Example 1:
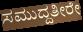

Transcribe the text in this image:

ಸಮುದ್ದತೀರೇ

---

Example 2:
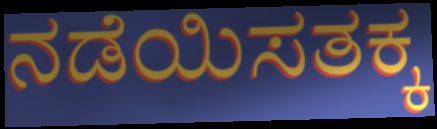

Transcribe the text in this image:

ನಡೆಯಿಸತಕ್ಕ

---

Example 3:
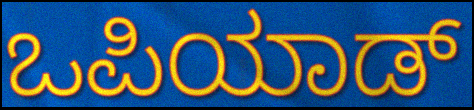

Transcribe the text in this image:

ಒಪಿಯಾಡ್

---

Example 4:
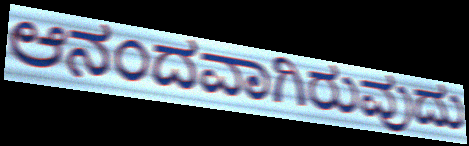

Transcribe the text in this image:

ಆನಂದವಾಗಿರುವುದು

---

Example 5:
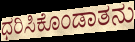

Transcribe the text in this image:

ಧರಿಸಿಕೊಂಡಾತನು